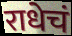
राधेचं